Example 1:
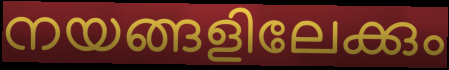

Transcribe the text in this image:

നയങ്ങളിലേക്കും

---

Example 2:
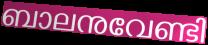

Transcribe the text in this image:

ബാലനുവേണ്ടി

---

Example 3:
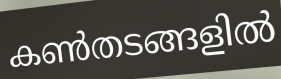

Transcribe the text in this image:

കൺതടങ്ങളിൽ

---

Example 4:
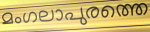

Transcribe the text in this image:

മംഗലാപുരത്തെ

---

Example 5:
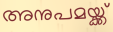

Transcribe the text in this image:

അനുപമയ്ക്ക്